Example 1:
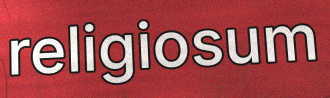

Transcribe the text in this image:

religiosum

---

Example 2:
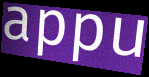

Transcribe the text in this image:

appu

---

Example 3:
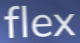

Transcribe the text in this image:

flex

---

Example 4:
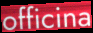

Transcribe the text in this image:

officina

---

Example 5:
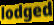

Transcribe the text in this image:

lodged